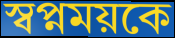
স্বপ্নময়কে